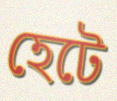
হেটে